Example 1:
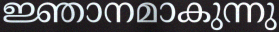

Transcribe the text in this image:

ജ്ഞാനമാകുന്നു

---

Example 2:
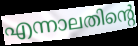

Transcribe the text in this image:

എന്നാലതിന്റെ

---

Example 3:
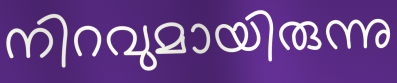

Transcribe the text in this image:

നിറവുമായിരുന്നു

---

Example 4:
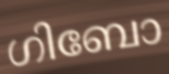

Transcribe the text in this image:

ഗിബോ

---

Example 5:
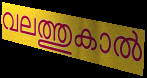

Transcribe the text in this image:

വലത്തുകാൽ